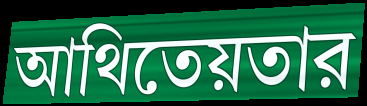
আথিতেয়তার